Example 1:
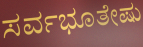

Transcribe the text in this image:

ಸರ್ವಭೂತೇಷು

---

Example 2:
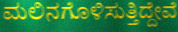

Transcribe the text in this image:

ಮಲಿನಗೊಳಿಸುತ್ತಿದ್ದೇವೆ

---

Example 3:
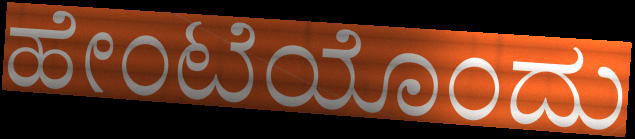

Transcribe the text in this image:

ಹೇಂಟೆಯೊಂದು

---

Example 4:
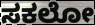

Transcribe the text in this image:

ಸಕಲೋ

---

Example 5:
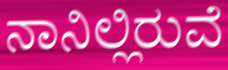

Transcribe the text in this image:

ನಾನಿಲ್ಲಿರುವೆ